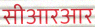
सीआरआर